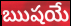
ఋషయే